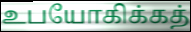
உபயோகிக்கத்